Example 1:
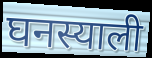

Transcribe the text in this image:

घनस्याली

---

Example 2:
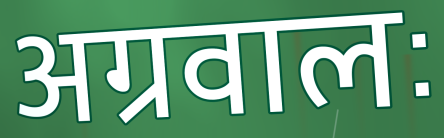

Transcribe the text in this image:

अग्रवालः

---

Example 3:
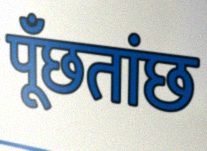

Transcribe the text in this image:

पूँछतांछ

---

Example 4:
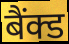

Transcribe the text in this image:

बैंक्ड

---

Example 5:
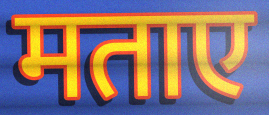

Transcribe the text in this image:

मताए